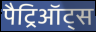
पैट्रिऑट्स